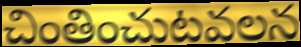
చింతించుటవలన